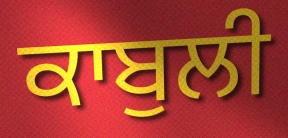
ਕਾਬੁਲੀ